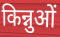
किन्नुओं